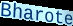
Bharote